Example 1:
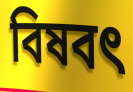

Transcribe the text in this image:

বিষবৎ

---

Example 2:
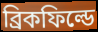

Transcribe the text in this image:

ব্রিকফিল্ডে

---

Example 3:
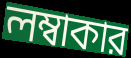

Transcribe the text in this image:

লম্বাকার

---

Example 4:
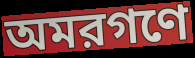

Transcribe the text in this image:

অমরগণে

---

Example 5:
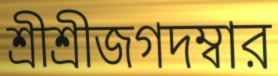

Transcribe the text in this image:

শ্রীশ্রীজগদম্বার